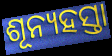
ଶୂନ୍ୟହସ୍ତା